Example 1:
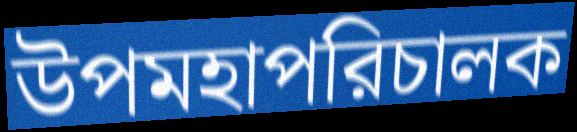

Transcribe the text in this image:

উপমহাপরিচালক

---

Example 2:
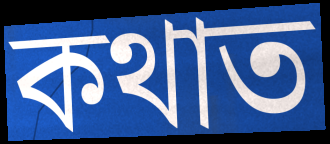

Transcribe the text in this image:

কথাত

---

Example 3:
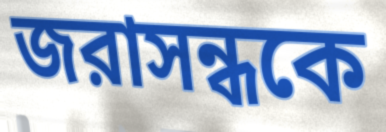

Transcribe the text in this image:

জরাসন্ধকে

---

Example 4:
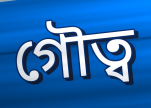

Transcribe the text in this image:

গৌত্ব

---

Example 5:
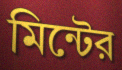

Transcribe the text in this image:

মিন্টের